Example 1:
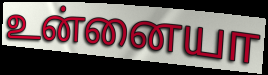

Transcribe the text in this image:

உன்னையா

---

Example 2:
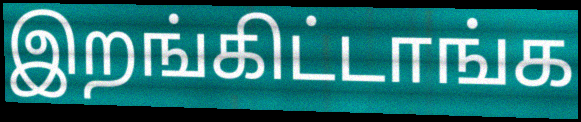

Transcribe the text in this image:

இறங்கிட்டாங்க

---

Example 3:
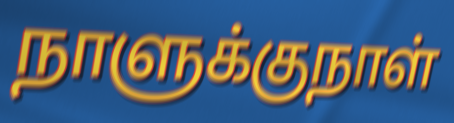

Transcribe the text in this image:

நாளுக்குநாள்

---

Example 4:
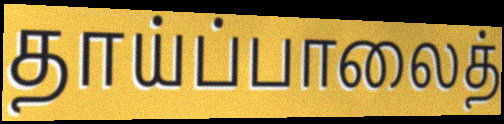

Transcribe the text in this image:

தாய்ப்பாலைத்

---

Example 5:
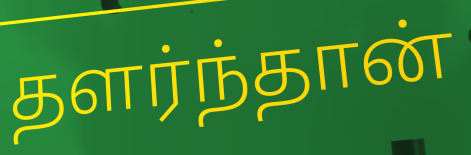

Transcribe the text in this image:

தளர்ந்தான்